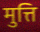
मुत्ति